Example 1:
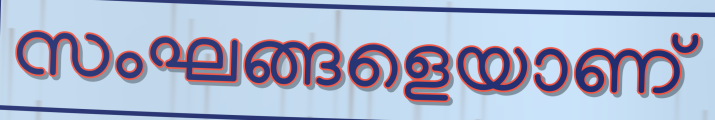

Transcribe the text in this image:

സംഘങ്ങളെയാണ്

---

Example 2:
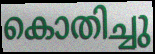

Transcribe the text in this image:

കൊതിച്ചു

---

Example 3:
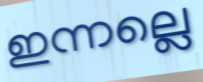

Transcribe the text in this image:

ഇന്നല്ലെ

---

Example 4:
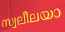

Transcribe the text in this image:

സ്വലീലയാ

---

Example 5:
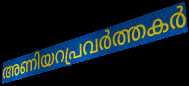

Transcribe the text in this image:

അണിയറപ്രവർത്തകർ